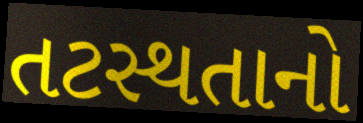
તટસ્થતાનો